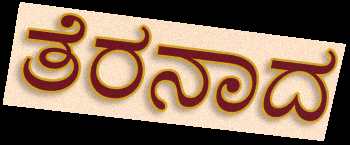
ತೆರನಾದ